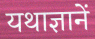
यथाज्ञानें